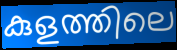
കുളത്തിലെ